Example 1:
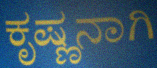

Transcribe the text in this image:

ಕೃಷ್ಣನಾಗಿ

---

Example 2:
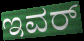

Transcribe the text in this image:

ಇವರ್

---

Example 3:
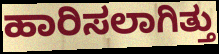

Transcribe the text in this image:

ಹಾರಿಸಲಾಗಿತ್ತು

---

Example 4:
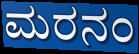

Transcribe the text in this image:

ಮರನಂ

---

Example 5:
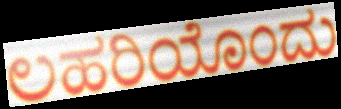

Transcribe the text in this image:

ಲಹರಿಯೊಂದು